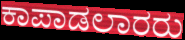
ಕಾಪಾಡಲಾರರು